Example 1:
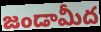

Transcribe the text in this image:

జండామీద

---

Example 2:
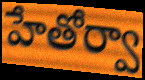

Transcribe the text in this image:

హేతోర్వా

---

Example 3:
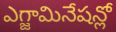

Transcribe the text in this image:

ఎగ్జామినేషన్లో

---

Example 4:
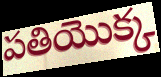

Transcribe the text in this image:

పతియొక్క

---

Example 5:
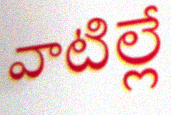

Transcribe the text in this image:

వాటిల్లే